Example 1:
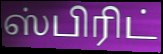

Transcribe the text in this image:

ஸ்பிரிட்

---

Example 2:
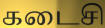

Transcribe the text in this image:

கடைசி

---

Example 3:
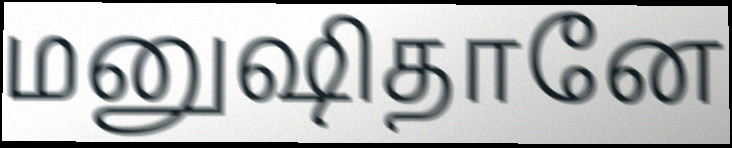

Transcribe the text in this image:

மனுஷிதானே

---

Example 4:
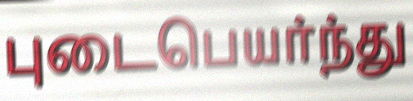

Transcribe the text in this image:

புடைபெயர்ந்து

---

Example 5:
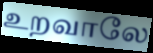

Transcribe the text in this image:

உறவாலே